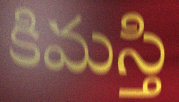
కిమస్తి